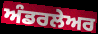
ਅੰਡਰਲੇਅਰ